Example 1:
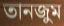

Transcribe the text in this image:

তানজুম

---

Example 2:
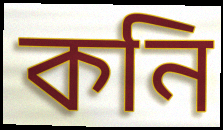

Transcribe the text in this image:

কনি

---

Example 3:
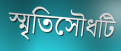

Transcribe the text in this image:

স্মৃতিসৌধটি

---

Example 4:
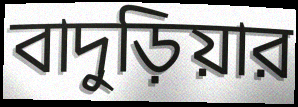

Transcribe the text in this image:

বাদুড়িয়ার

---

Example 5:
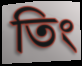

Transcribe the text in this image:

তিং